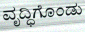
ವೃದ್ಧಿಗೊಂಡು